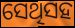
ସେଥିସହ